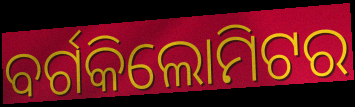
ବର୍ଗକିଲୋମିଟର